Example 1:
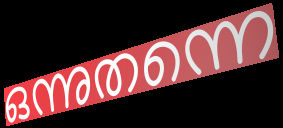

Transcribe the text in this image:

ഒന്നുതന്നെ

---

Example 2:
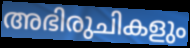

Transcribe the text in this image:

അഭിരുചികളും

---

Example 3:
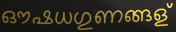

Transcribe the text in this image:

ഔഷധഗുണങ്ങള്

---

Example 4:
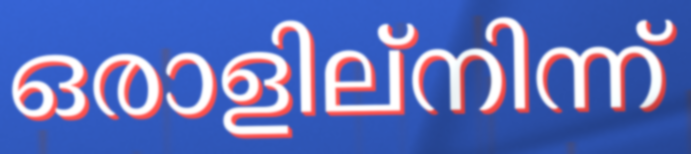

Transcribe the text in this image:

ഒരാളില്നിന്ന്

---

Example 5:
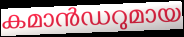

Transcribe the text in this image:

കമാൻഡറുമായ